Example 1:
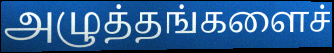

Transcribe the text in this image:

அழுத்தங்களைச்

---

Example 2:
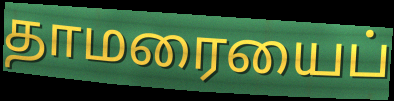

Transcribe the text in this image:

தாமரையைப்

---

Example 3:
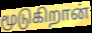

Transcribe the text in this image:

மூடுகிறான்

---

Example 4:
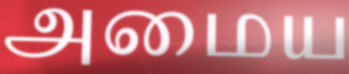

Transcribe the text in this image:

அமைய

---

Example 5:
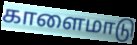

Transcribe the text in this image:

காளைமாடு